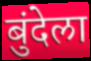
बुंदेला